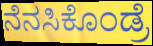
ನೆನಸಿಕೊಂಡ್ರೆ